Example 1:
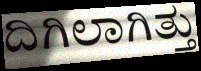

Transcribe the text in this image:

ದಿಗಿಲಾಗಿತ್ತು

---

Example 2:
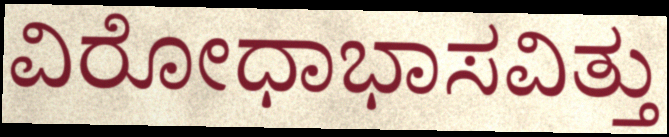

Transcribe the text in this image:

ವಿರೋಧಾಭಾಸವಿತ್ತು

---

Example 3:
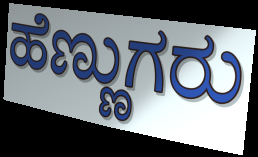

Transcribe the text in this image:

ಹೆಣ್ಣುಗರು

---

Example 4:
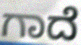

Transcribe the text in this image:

ಗಾದೆ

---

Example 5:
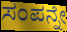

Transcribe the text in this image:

ಸಂಪನ್ನೇ